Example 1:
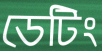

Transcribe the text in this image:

ডেটিং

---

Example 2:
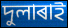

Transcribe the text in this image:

দুলাৰাই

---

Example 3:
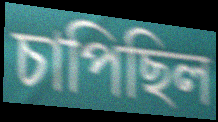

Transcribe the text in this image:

চাপিছিল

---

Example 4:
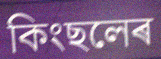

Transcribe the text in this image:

কিংছলেৰ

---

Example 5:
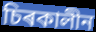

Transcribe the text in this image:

চিৰকালীন